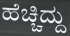
ಹೆಚ್ಚಿದ್ದು